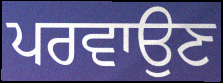
ਪਰਵਾਉਣ